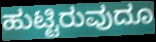
ಹುಟ್ಟಿರುವುದೂ